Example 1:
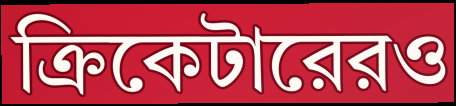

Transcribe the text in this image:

ক্রিকেটারেরও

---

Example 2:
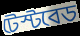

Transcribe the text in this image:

টেস্টবেড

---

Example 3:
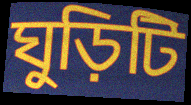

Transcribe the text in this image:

ঘুড়িটি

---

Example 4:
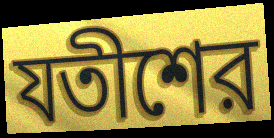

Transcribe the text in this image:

যতীশের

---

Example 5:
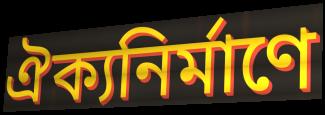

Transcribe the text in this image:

ঐক্যনির্মাণে